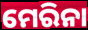
ମେରିନା